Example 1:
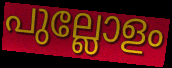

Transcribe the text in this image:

പുല്ലോളം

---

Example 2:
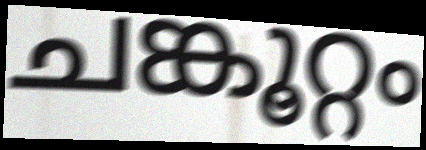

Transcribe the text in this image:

ചങ്കൂറ്റം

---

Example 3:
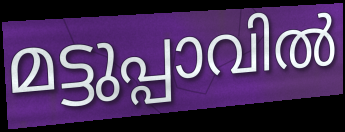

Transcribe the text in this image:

മട്ടുപ്പാവിൽ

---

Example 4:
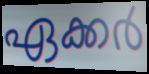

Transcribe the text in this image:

ഏക്കർ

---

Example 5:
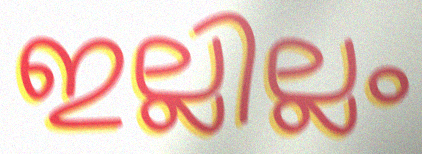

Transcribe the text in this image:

ഇല്ലില്ലം